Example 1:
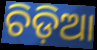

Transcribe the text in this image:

ଚିଡ଼ିଆ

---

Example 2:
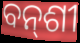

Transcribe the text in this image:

ବନ୍‍ଶୀ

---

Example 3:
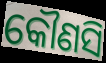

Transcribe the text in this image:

କୌଣସି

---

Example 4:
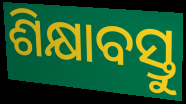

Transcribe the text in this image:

ଶିକ୍ଷାବସ୍ତୁ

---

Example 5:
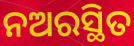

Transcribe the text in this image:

ନଅରସ୍ଥିତ